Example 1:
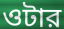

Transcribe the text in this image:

ওটার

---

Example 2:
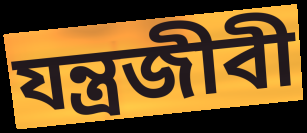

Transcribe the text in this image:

যন্ত্রজীবী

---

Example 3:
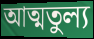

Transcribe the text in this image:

আত্মতুল্য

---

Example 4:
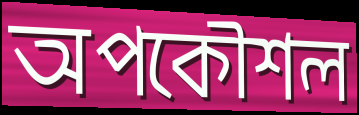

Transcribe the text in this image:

অপকৌশল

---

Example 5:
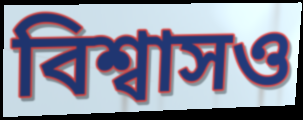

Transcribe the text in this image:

বিশ্বাসও